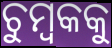
ଚୁମ୍ବକକୁ